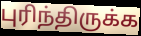
புரிந்திருக்க